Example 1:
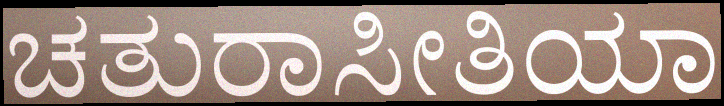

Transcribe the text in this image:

ಚತುರಾಸೀತಿಯಾ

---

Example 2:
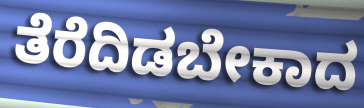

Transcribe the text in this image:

ತೆರೆದಿಡಬೇಕಾದ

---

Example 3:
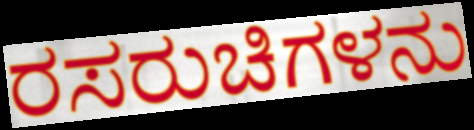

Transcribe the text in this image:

ರಸರುಚಿಗಳನು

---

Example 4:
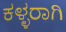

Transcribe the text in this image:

ಕಳ್ಳರಾಗಿ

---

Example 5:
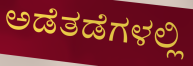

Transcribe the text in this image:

ಅಡೆತಡೆಗಳಲ್ಲಿ